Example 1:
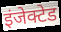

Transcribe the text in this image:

इंजेक्टेड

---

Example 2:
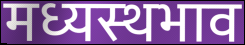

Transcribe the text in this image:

मध्यस्थभाव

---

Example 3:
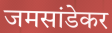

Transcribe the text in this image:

जमसांडेकर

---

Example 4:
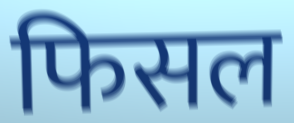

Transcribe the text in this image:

फिसल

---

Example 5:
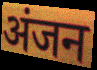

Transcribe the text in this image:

अंजन